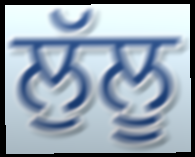
ਲੁੱਲੂ